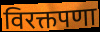
विरक्तपणा